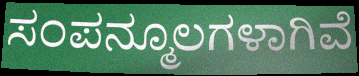
ಸಂಪನ್ಮೂಲಗಳಾಗಿವೆ